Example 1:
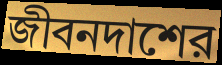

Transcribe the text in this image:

জীবনদাশের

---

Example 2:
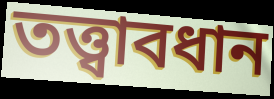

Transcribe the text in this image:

তত্ত্বাবধান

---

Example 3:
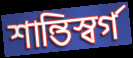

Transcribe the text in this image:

শান্তিস্বর্গ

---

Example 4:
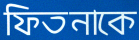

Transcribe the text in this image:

ফিতনাকে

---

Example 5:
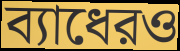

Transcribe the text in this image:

ব্যাধেরও